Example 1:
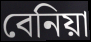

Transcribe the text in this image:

বেনিয়া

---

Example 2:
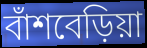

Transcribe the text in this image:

বাঁশবেড়িয়া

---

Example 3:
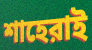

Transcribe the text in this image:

শাহেরাই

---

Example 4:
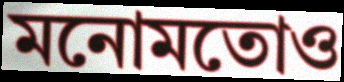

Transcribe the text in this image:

মনোমতোও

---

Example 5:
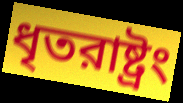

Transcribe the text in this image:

ধৃতরাষ্ট্রং